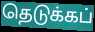
தெடுக்கப்